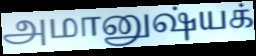
அமானுஷ்யக்